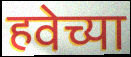
हवेच्या